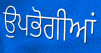
ਉਪਭੋਗੀਆਂ